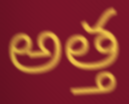
అత్త